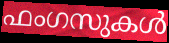
ഫംഗസുകൾ